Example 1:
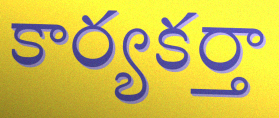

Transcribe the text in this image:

కార్యకర్తా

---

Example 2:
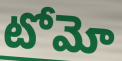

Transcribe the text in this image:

టోమో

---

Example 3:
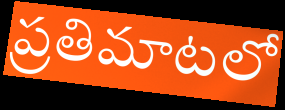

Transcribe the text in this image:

ప్రతిమాటలో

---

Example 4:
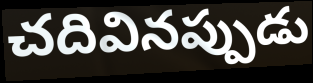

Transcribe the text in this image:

చదివినప్పుడు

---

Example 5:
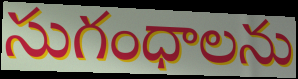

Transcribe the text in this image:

సుగంధాలను